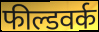
फील्डवर्क